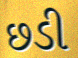
છડી